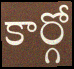
కార్గో